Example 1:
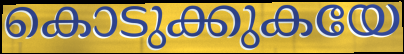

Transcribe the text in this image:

കൊടുക്കുകയേ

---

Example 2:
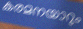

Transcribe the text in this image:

കരമനയാറും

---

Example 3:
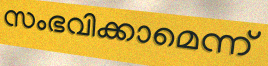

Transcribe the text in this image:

സംഭവിക്കാമെന്ന്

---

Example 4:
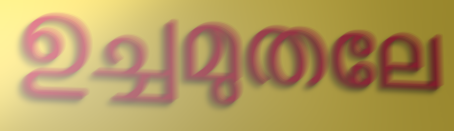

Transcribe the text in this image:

ഉച്ചമുതലേ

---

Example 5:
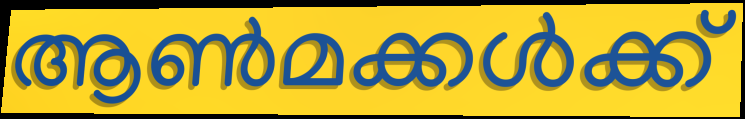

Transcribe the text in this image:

ആൺമക്കൾക്ക്